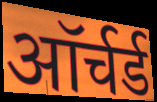
ऑर्चर्ड